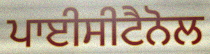
ਪਾਈਸੀਟੈਨੋਲ